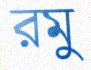
রমু